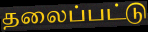
தலைப்பட்டு